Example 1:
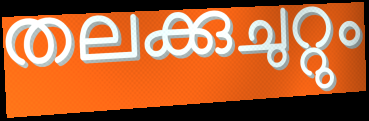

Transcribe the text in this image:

തലക്കുചുറ്റും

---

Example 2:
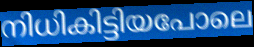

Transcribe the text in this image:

നിധികിട്ടിയപോലെ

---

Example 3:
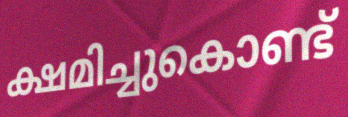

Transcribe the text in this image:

ക്ഷമിച്ചുകൊണ്ട്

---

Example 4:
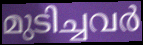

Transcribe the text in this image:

മുടിച്ചവർ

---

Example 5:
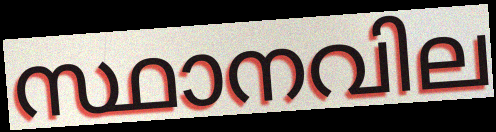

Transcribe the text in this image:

സ്ഥാനവില